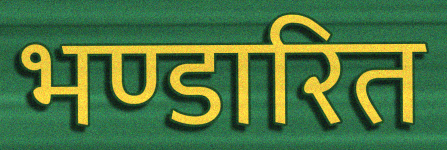
भण्डारित